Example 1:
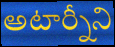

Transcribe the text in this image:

అటార్నీని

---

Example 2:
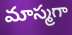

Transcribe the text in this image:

మాస్మగా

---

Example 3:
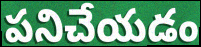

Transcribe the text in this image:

పనిచేయడం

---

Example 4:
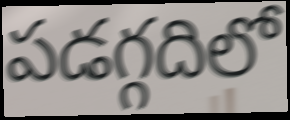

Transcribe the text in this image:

పడగ్గదిలో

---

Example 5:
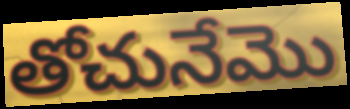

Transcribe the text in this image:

తోచునేమొ